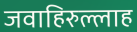
जवाहिरुल्लाह